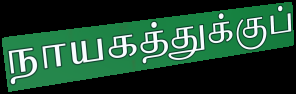
நாயகத்துக்குப்